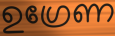
ഉഗ്രേണ